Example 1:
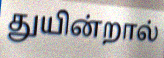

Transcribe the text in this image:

துயின்றால்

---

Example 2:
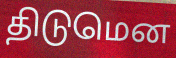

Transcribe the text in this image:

திடுமென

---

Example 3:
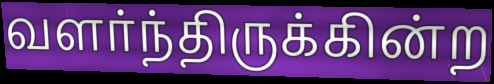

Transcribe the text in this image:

வளர்ந்திருக்கின்ற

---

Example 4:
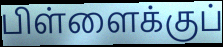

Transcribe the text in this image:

பிள்ளைக்குப்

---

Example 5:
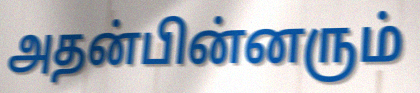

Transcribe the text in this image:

அதன்பின்னரும்